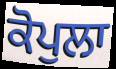
ਕੋਪੁਲਾ